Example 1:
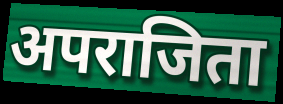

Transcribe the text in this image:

अपराजिता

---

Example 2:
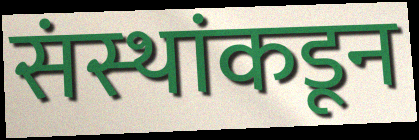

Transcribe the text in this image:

संस्थांकडून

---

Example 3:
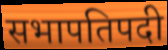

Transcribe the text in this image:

सभापतिपदी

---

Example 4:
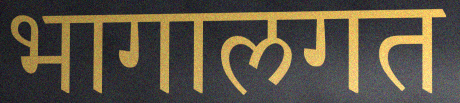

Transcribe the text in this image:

भागालगत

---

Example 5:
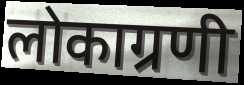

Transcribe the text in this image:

लोकाग्रणी